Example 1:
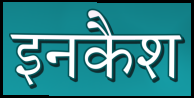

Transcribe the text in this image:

इनकैश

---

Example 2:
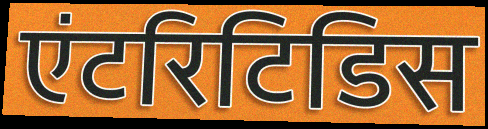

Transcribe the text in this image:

एंटरिटिडिस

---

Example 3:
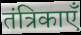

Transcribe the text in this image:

तंत्रिकाएँ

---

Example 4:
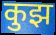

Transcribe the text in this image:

कुझ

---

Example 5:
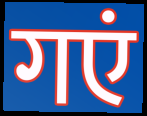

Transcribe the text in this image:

गएं